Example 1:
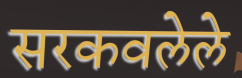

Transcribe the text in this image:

सरकवलेले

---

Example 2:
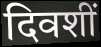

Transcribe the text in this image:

दिवशीं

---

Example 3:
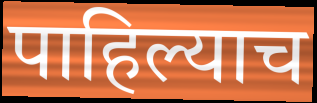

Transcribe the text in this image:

पाहिल्याच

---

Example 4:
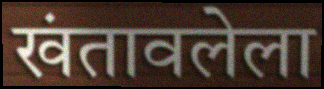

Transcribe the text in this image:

खंतावलेला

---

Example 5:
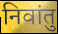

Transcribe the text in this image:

निवांतु